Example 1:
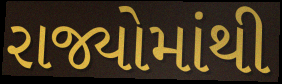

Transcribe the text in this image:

રાજ્યોમાંથી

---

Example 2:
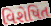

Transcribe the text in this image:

વિશેષિત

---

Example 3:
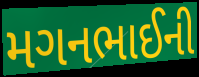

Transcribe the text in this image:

મગનભાઈની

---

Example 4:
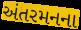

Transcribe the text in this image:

અંતરમનના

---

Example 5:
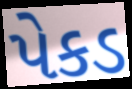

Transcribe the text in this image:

પેકડ